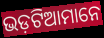
ଭଡ଼ଟିଆମାନେ